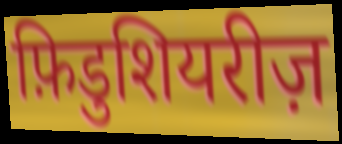
फ़िडुशियरीज़